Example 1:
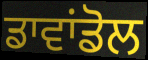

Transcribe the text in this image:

ਡਾਵਾਂਡੋਲ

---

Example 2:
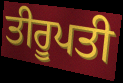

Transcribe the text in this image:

ਤੀਰੂਪਤੀ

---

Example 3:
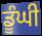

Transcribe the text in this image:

ਡੂੰਘੀ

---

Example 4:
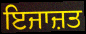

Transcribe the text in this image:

ਇਜਾਜ਼ਤ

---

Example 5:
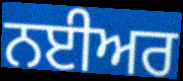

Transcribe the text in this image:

ਨਈਅਰ